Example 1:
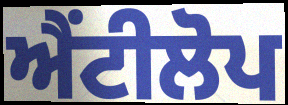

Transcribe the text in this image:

ਐਂਟੀਲੋਪ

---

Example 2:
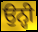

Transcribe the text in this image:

ਉਨ੍ਹੀ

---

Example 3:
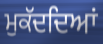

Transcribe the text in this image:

ਮੁਕੱਦਦਿਆਂ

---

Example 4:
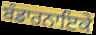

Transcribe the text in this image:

ਬੰਡਾਰਨਾਇਕੇ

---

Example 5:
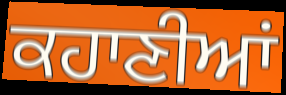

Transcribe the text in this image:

ਕਹਾਣੀਆਂ